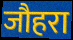
जौहरा